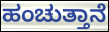
ಹಂಚುತ್ತಾನೆ